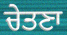
ਚੇਤਣਾ